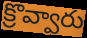
క్రొవ్వారు